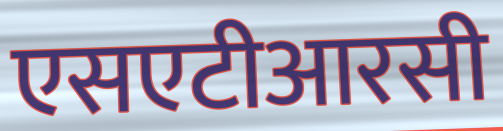
एसएटीआरसी